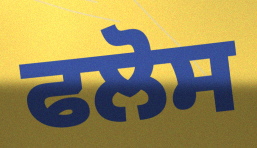
ਫਲੋਸ